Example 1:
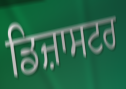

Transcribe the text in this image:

ਡਿਜ਼ਾਸਟਰ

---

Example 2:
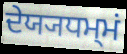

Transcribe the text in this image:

ਦੇਯ੍ਯਧਮ੍ਮਂ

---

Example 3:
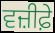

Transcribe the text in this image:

ਵਜ਼ੀਫ਼ੇ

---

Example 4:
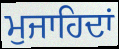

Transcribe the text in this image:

ਮੁਜਾਹਿਦਾਂ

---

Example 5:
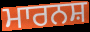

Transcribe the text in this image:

ਮਾਰਨਸ਼